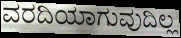
ವರದಿಯಾಗುವುದಿಲ್ಲ